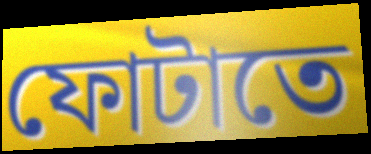
ফোটাতে